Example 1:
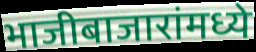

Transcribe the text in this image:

भाजीबाजारांमध्ये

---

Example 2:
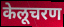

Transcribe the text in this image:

केलूचरण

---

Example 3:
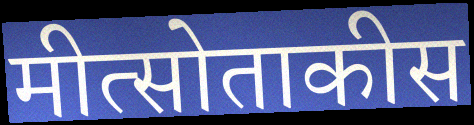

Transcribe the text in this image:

मीत्सोताकीस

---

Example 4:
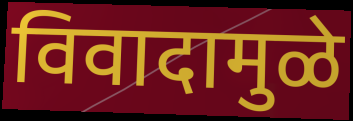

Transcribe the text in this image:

विवादामुळे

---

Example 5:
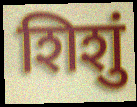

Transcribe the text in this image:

शिशुं